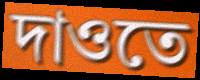
দাওতে